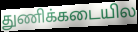
துணிக்கடையில